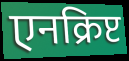
एनक्रिप्ट